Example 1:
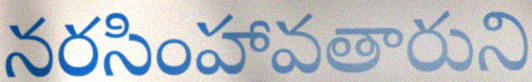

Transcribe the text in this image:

నరసింహావతారుని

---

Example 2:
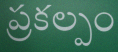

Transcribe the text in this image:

ప్రకల్పం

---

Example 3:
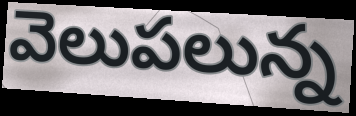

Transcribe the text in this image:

వెలుపలున్న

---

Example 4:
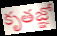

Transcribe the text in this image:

కృతజ్ఞో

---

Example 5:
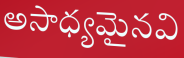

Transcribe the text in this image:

అసాధ్యమైనవి